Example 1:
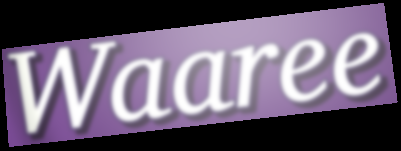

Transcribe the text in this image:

Waaree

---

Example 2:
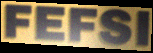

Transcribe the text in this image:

FEFSI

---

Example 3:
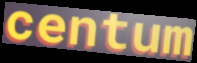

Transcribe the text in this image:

centum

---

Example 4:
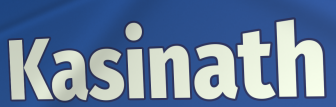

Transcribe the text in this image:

Kasinath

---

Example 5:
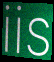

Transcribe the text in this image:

iis